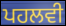
ਪਹਲਵੀ